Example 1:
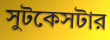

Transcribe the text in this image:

সুটকেসটার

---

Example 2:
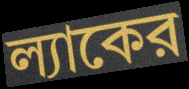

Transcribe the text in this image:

ল্যাকের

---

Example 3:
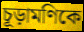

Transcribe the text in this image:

চূড়ামণিকে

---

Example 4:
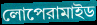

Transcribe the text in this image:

লোপেরামাইড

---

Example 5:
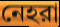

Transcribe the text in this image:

নেহরা